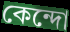
কেন্দো